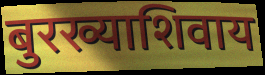
बुरख्याशिवाय